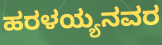
ಹರಳಯ್ಯನವರ